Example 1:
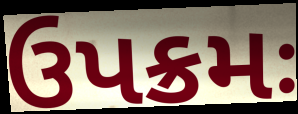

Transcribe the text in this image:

ઉપક્રમઃ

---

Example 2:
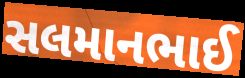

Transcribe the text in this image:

સલમાનભાઈ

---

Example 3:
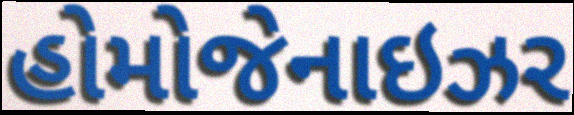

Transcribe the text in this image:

હોમોજેનાઇઝર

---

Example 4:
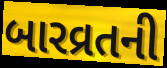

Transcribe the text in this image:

બારવ્રતની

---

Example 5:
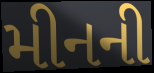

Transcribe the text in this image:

મીનની